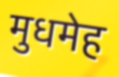
मुधमेह